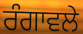
ਰੰਗਾਵਲੇ